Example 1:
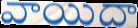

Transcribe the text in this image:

వాయిదా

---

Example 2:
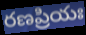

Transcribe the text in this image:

రణప్రియః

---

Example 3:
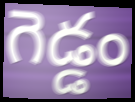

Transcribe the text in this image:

గెడ్డం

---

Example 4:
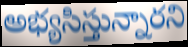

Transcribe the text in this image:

అభ్యసిస్తున్నారని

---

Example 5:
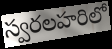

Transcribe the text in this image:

స్వరలహరిలో